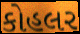
કોહલર